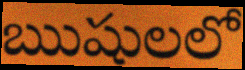
ఋషులలో